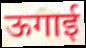
ऊगाई